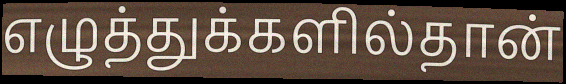
எழுத்துக்களில்தான்